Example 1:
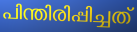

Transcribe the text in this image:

പിന്തിരിപ്പിച്ചത്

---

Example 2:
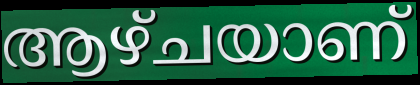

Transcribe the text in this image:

ആഴ്ചയാണ്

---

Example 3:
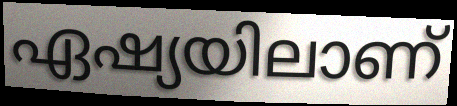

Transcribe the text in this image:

ഏഷ്യയിലാണ്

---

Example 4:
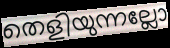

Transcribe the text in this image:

തെളിയുന്നല്ലോ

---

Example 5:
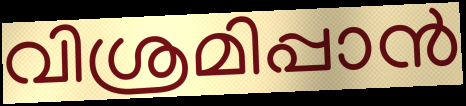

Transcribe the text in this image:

വിശ്രമിപ്പാൻ